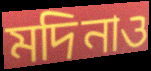
মদিনাও